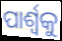
ପାର୍ଶ୍ଵକୁ